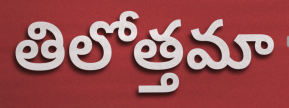
తిలోత్తమా